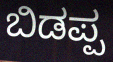
ಬಿಡಪ್ಪ